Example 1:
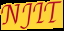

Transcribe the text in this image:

NJIT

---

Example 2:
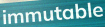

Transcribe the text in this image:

immutable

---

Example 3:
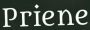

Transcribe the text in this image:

Priene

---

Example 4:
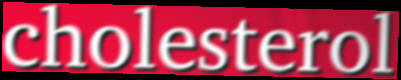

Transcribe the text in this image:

cholesterol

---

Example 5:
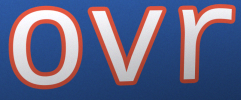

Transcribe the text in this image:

ovr